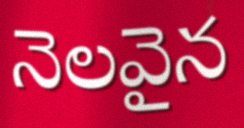
నెలవైన